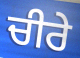
ਚੀਰੇ